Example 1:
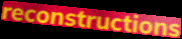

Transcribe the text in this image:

reconstructions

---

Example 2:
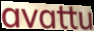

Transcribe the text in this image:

avattu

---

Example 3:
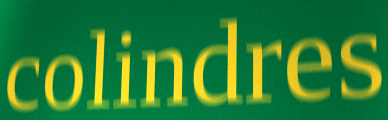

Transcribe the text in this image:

colindres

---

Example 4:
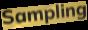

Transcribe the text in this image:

Sampling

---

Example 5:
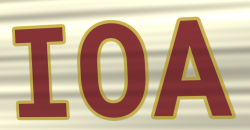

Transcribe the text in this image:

IOA